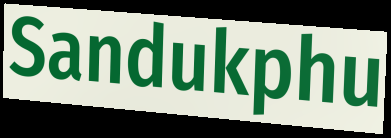
Sandukphu